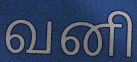
வனி